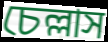
চেল্লাস